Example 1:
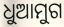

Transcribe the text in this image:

ଧୁଆମୁଗ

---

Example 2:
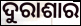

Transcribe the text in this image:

ଦୁରାଶାର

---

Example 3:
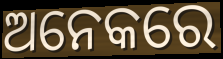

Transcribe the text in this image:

ଅନେକରେ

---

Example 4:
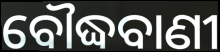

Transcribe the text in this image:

ବୌଦ୍ଧବାଣୀ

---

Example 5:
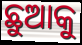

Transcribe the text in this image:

ଛୁଆକୁ